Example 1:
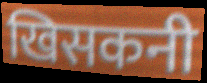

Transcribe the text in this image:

खिसकनी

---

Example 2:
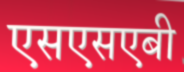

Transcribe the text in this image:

एसएसएबी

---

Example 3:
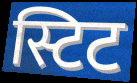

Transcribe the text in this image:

स्टिट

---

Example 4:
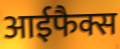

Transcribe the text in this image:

आईफैक्स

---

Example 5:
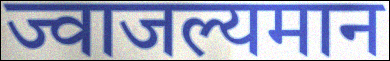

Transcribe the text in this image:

ज्वाजल्यमान